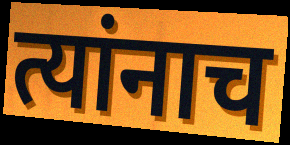
त्यांनाच